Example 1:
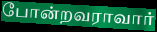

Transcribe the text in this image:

போன்றவராவார்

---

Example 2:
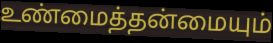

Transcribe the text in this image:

உண்மைத்தன்மையும்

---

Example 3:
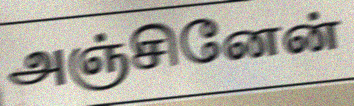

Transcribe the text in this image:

அஞ்சினேன்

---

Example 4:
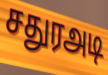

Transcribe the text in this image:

சதுரஅடி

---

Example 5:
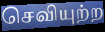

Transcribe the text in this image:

செவியுற்ற